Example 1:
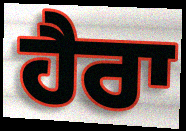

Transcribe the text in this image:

ਹੈਰਾ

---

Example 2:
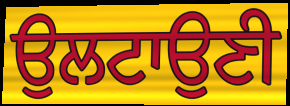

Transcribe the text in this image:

ਉਲਟਾਉਣੀ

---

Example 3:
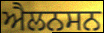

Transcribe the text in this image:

ਐਲਨਸਨ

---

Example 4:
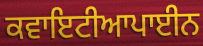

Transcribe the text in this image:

ਕਵਾਇਟੀਆਪਾਈਨ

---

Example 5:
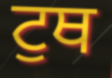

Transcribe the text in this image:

ਟੁਥ